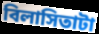
বিলাসিতাটা